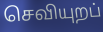
செவியுறப்